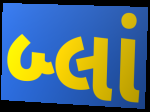
બ્લાં